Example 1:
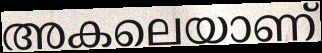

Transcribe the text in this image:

അകലെയാണ്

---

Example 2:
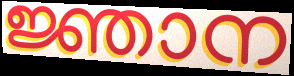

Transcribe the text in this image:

ജ്ഞാന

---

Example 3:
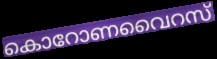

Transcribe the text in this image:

കൊറോണവൈറസ്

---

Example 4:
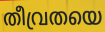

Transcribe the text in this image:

തീവ്രതയെ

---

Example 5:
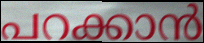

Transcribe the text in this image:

പറക്കാൻ